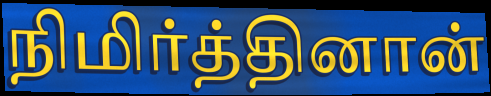
நிமிர்த்தினான்